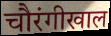
चौरंगीखाल